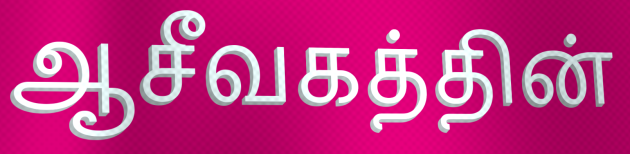
ஆசீவகத்தின்